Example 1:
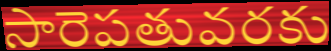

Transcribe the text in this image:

సారెపతువరకు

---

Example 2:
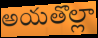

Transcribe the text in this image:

అయతొల్లా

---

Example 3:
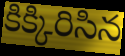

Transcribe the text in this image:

కిక్కిరిసిన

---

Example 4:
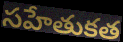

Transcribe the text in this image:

సహేతుకత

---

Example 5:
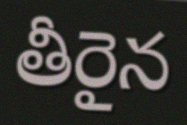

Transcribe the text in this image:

తీరైన